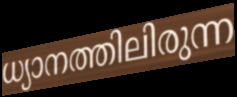
ധ്യാനത്തിലിരുന്ന